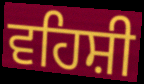
ਵਹਿਸ਼ੀ